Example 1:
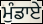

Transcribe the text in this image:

ਮੁੰਡਾਏ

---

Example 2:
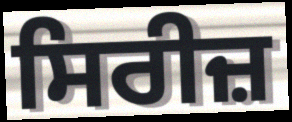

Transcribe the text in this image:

ਸਿਰੀਜ਼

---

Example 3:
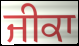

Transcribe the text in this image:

ਜੀਕਾ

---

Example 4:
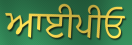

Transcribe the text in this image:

ਆਈਪੀਓ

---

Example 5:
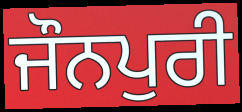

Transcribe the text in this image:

ਜੌਨਪੁਰੀ